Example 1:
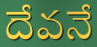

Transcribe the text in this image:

దేవనే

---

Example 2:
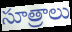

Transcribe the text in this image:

సూత్రాలు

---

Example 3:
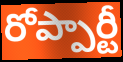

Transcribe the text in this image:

రోప్పార్టీ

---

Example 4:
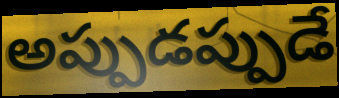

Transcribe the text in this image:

అప్పుడప్పుడే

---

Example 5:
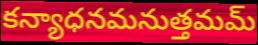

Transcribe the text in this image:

కన్యాధనమనుత్తమమ్